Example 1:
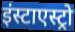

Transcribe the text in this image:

इंस्टाएस्ट्रो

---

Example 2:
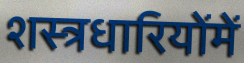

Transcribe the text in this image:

शस्त्रधारियोंमें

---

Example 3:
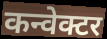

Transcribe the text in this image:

कन्वेक्टर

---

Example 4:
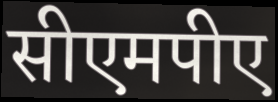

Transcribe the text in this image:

सीएमपीए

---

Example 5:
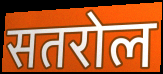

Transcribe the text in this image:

सतरोल